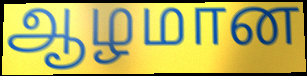
ஆழமான